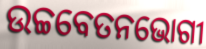
ଉଚ୍ଚବେତନଭୋଗୀ